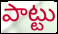
పాట్టు